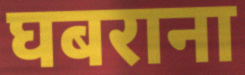
घबराना